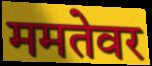
ममतेवर